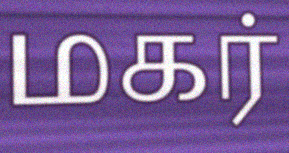
மகர்